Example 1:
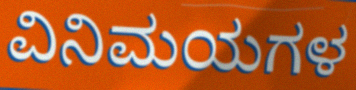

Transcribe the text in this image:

ವಿನಿಮಯಗಳ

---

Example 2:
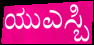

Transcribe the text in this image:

ಯುಎಸ್ಬಿ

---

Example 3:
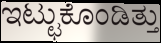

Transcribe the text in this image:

ಇಟ್ಟುಕೊಂಡಿತ್ತು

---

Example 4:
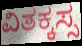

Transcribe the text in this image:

ವಿತಕ್ಕಸ್ಸ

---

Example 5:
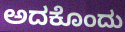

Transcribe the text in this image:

ಅದಕೊಂದು